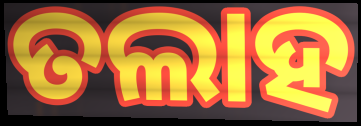
ତଲାହ